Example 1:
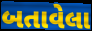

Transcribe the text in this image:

બતાવેલા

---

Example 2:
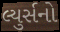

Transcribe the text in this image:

લ્યુર્સનો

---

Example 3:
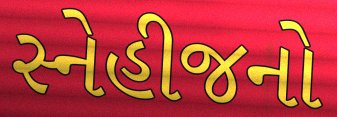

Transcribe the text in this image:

સ્નેહીજનો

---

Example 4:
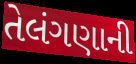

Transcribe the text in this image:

તેલંગણાની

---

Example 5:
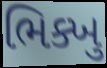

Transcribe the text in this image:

ભિક્ખુ